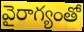
వైరాగ్యంతో